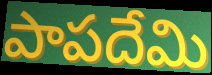
పాపదేమి